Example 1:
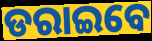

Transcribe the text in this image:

ଡରାଇବେ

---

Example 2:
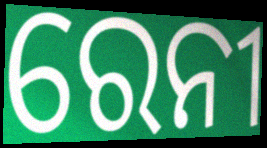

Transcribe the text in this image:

ରେନୀ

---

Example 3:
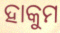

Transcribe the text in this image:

ହାକୁମ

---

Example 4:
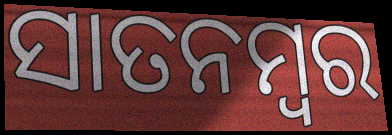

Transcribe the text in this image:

ସାତନମ୍ବର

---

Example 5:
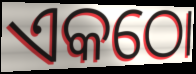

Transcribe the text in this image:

ଏକଠୋ